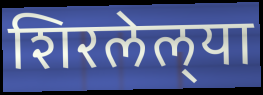
शिरलेल्या